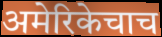
अमेरिकेचाच